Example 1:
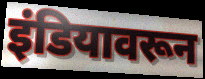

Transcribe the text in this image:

इंडियावरून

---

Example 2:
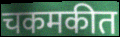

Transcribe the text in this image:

चकमकीत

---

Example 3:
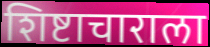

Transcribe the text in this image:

शिष्टाचाराला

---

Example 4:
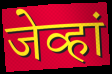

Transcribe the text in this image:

जेव्हां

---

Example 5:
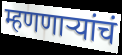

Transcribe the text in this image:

म्हणणाऱ्यांचं